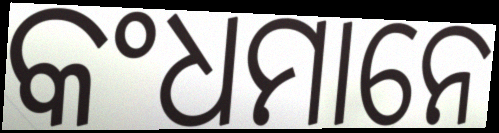
କଂଧମାନେ